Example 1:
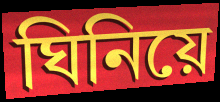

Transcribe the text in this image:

ঘিনিয়ে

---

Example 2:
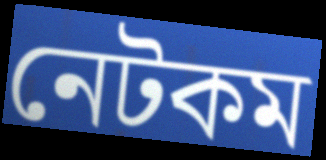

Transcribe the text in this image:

নেটকম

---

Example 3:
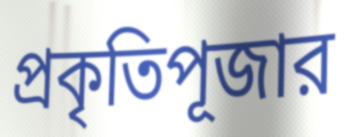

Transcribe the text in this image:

প্রকৃতিপূজার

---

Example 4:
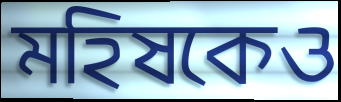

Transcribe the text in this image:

মহিষকেও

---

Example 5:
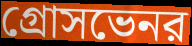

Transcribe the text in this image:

গ্রোসভেনর